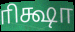
ரிக்ஷா